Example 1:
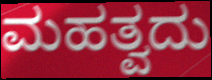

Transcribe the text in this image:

ಮಹತ್ವದು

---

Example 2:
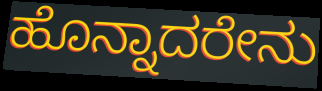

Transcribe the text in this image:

ಹೊನ್ನಾದರೇನು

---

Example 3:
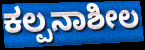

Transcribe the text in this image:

ಕಲ್ಪನಾಶೀಲ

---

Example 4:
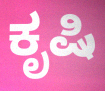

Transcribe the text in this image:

ಕೃಷಿ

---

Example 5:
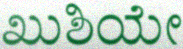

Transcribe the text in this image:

ಖುಶಿಯೇ